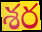
శర